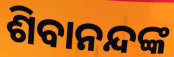
ଶିବାନନ୍ଦଙ୍କ